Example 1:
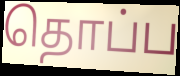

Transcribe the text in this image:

தொப்ப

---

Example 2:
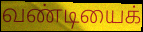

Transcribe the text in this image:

வண்டியைக்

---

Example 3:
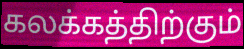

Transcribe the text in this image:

கலக்கத்திற்கும்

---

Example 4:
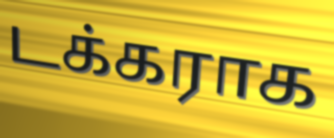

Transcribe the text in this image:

டக்கராக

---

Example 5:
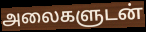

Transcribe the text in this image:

அலைகளுடன்